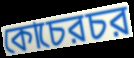
কোচেরচর